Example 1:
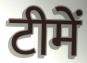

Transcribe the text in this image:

टीमें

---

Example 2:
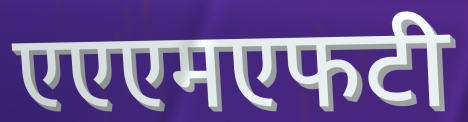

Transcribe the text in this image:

एएएमएफटी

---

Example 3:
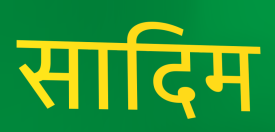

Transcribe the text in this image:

सादिम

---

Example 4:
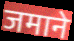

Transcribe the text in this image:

जमाने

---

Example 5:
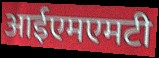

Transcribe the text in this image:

आईएमएमटी